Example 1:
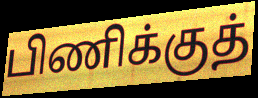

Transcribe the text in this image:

பிணிக்குத்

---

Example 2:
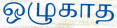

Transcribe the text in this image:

ஒழுகாத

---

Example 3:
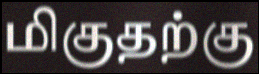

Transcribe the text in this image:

மிகுதற்கு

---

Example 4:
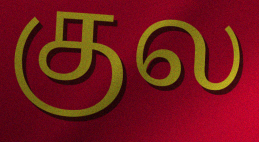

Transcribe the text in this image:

குல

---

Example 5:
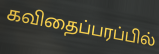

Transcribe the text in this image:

கவிதைப்பரப்பில்